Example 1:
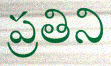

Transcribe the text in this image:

ప్రతిని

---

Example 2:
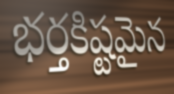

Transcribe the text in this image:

భర్తకిష్టమైన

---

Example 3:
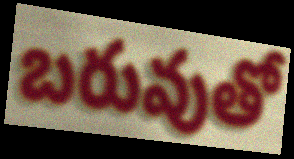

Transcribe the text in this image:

బరువుతో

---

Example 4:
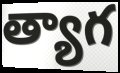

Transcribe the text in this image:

త్యాగ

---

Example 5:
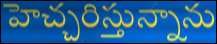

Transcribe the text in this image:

హెచ్చరిస్తున్నాను